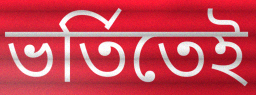
ভর্তিতেই